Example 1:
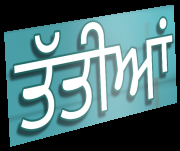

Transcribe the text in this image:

ਤੱਤੀਆਂ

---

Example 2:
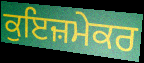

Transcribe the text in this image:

ਕੁਇਜ਼ਮੇਕਰ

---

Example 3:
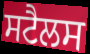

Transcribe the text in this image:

ਸਟੈਲਸ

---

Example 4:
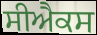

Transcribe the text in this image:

ਸੀਐਕਸ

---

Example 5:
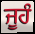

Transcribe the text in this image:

ਜੂਹੰ